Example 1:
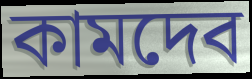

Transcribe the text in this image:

কামদেব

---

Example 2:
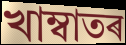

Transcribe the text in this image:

খাম্বাতৰ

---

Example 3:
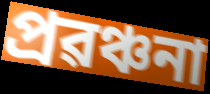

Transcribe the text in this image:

প্ৰৱঞ্চনা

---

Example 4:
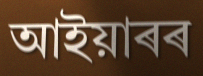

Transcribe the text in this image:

আইয়াৰৰ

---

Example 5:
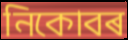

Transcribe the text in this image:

নিকোবৰ